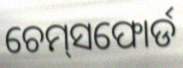
ଚେମ୍‌ସଫୋର୍ଡ